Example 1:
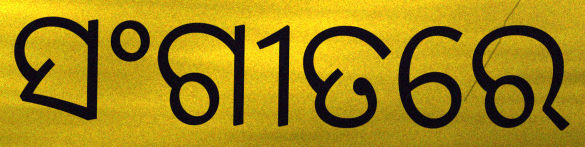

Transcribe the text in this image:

ସଂଗୀତରେ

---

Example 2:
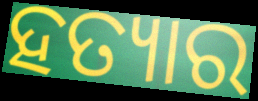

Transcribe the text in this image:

ହତ୍ୟାର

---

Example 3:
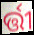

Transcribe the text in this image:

ର୍ତ୍ତୀ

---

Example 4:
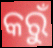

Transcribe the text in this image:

କରୁଁ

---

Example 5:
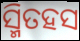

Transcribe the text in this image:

ସ୍ମିତହସ